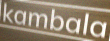
kambala